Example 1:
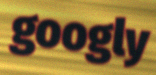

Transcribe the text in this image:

googly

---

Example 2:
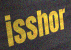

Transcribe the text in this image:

isshor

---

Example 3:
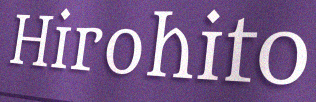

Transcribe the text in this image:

Hirohito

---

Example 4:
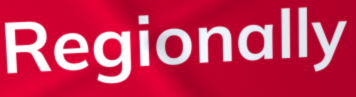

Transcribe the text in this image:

Regionally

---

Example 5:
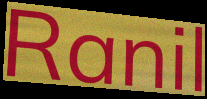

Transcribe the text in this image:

Ranil